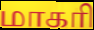
மாகரி